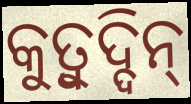
କୁତ୍ବୁଦ୍ଦିନ୍